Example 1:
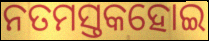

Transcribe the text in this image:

ନତମସ୍ତକହୋଇ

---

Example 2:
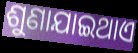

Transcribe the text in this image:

ଶୁଣାଯାଇଥାଏ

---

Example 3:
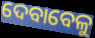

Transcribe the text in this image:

ଦେବାବେଳୁ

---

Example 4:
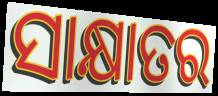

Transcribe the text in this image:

ସାକ୍ଷାତର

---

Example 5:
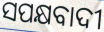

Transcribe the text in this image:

ସପକ୍ଷବାଦୀ